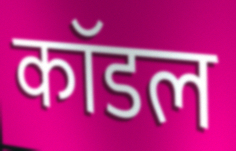
कॉडल